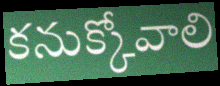
కనుక్కోవాలి